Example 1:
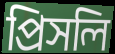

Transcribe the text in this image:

প্রিসলি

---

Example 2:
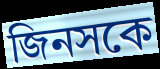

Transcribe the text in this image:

জিনসকে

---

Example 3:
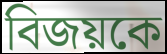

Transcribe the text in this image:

বিজয়কে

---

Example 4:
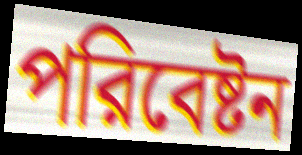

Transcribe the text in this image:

পরিবেষ্টন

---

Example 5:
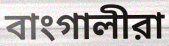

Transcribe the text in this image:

বাংগালীরা